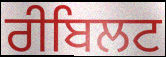
ਰੀਬਿਲਟ